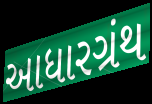
આધારગ્રંથ